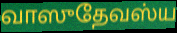
வாஸுதேவஸ்ய